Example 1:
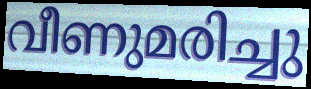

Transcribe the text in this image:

വീണുമരിച്ചു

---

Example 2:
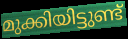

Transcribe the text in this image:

മുക്കിയിട്ടുണ്ട്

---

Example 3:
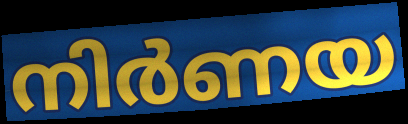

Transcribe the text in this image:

നിർണയ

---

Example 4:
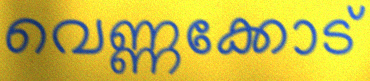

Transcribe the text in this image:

വെണ്ണക്കോട്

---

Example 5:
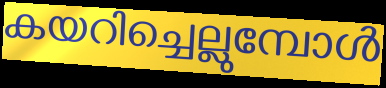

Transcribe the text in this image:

കയറിച്ചെല്ലുമ്പോൾ